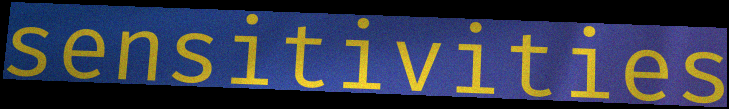
sensitivities